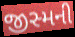
જીસ્મની